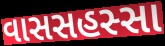
વાસસહસ્સા